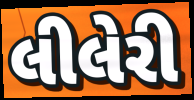
લીલેરી